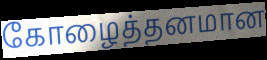
கோழைத்தனமான